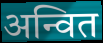
अन्वित